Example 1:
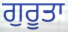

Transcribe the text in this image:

ਗੁਰੂਤਾ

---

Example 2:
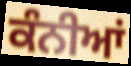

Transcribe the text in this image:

ਕੰਨੀਆਂ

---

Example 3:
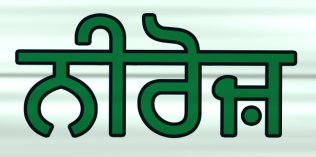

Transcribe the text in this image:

ਨੀਰੋਜ਼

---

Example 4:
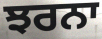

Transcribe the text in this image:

ਝਰਨਾ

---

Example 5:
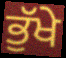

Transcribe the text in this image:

ਭੁੱਖੇ